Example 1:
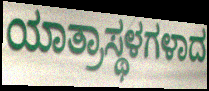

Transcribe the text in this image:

ಯಾತ್ರಾಸ್ಥಳಗಳಾದ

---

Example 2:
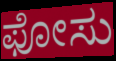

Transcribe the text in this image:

ಫೋಸು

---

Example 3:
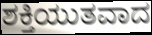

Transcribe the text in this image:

ಶಕ್ತಿಯುತವಾದ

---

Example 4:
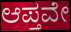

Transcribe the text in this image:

ಆಪ್ತವೇ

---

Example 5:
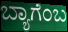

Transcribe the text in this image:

ಬ್ಯಾಗೆಂಬ